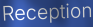
Reception